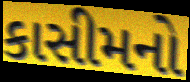
કાસીમનો